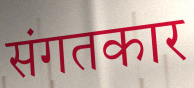
संगतकार